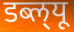
डब्ल्यू